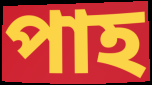
পাহ